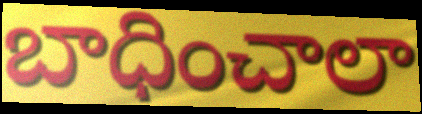
బాధించాలా